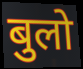
बुलो